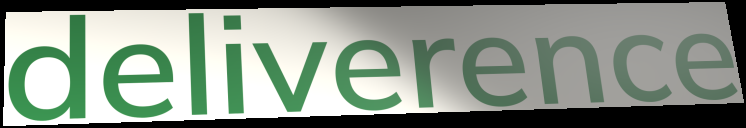
deliverence